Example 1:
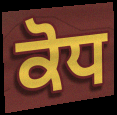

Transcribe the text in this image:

ਕੋਧ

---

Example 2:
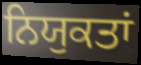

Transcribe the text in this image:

ਨਿਯੁਕਤਾਂ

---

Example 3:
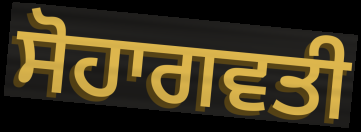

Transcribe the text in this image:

ਸੋਹਾਗਵਤੀ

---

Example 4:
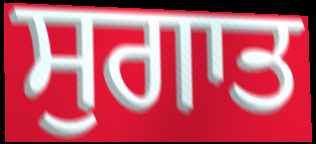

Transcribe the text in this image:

ਸੁਗਾਤ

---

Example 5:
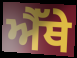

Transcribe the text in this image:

ਐੱਥੇ